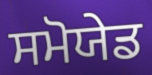
ਸਮੋਯੇਡ